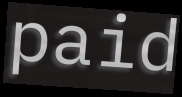
paid